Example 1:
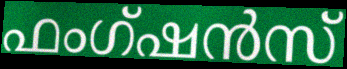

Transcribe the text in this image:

ഫംഗ്ഷൻസ്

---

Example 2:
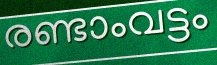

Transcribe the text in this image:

രണ്ടാംവട്ടം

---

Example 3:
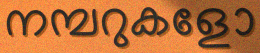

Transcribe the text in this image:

നമ്പറുകളോ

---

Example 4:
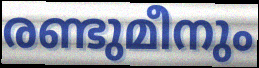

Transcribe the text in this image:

രണ്ടുമീനും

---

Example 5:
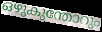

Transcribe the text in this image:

ഒഴുകുന്തോറും